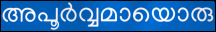
അപൂർവ്വമായൊരു